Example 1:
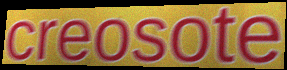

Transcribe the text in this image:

creosote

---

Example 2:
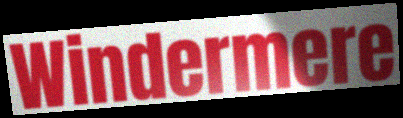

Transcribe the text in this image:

Windermere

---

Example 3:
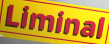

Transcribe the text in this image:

Liminal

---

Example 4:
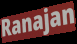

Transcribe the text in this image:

Ranajan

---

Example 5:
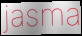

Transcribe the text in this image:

jasma